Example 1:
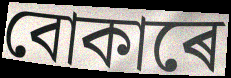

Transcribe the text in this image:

বোকাৰে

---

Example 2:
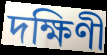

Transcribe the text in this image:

দক্ষিণী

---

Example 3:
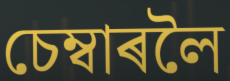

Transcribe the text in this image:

চেম্বাৰলৈ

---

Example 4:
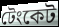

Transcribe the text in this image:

টেংকেট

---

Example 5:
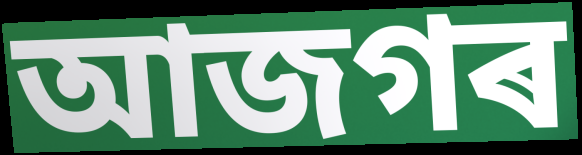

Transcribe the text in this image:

আজগৰ